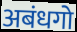
अबंधगो